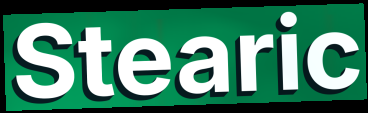
Stearic